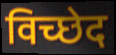
विच्छेद